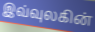
இவ்வுலகின்